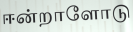
ஈன்றாளோடு